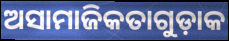
ଅସାମାଜିକତାଗୁଡ଼ାକ